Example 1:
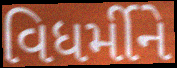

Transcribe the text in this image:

વિધર્મીને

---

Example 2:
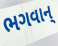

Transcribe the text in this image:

ભગવાન્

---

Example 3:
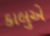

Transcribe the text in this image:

કાલુએ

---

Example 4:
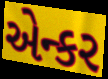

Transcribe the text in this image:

એન્કર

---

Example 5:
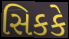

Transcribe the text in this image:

સિકકે